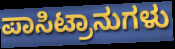
ಪಾಸಿಟ್ರಾನುಗಳು